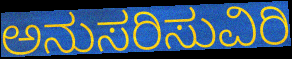
ಅನುಸರಿಸುವಿರಿ